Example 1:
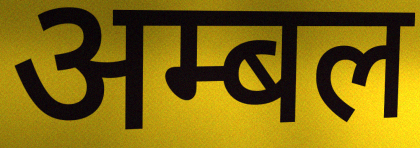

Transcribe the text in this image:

अम्बल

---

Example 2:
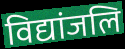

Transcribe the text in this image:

विद्यांजलि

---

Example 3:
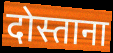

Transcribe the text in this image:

दोस्ताना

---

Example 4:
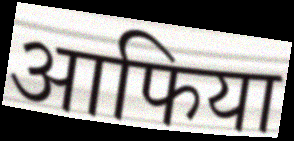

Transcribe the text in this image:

आफिया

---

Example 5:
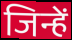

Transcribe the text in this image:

जिन्‍हें